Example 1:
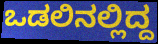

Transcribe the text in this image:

ಒಡಲಿನಲ್ಲಿದ್ದ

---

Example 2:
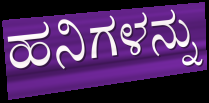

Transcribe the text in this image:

ಹನಿಗಳನ್ನು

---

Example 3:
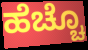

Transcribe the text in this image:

ಹೆಚ್ಚೊ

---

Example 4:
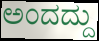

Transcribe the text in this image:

ಅಂದದ್ದು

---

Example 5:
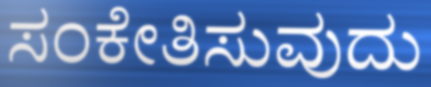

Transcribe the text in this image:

ಸಂಕೇತಿಸುವುದು